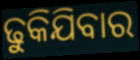
ଢୁକିଯିବାର